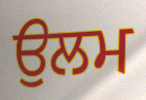
ਉਲਮ